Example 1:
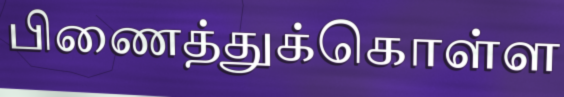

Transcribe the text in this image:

பிணைத்துக்கொள்ள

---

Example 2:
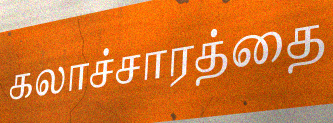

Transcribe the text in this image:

கலாச்சாரத்தை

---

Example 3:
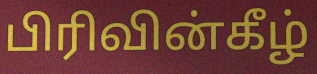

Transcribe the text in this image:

பிரிவின்கீழ்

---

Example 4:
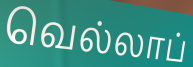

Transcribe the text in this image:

வெல்லாப்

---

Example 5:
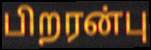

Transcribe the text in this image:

பிறரன்பு